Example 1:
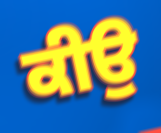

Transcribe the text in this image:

ਕੀਉ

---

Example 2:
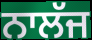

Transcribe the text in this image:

ਨਾਲੱਜ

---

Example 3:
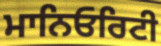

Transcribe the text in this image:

ਮਾਨਿਓਰਿਟੀ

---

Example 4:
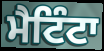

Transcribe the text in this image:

ਮੈਟਿੰਟਾ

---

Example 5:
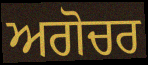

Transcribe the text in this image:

ਅਗੋਚਰ